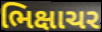
ભિક્ષાચર